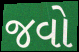
જવો